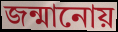
জন্মানোয়